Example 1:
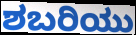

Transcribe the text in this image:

ಶಬರಿಯು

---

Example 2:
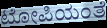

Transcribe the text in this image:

ಟೋಪಿಯಂತೆ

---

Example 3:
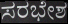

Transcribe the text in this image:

ಸರಭೇಶ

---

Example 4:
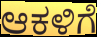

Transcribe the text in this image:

ಆಕಳಿಗೆ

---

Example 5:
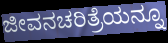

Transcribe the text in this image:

ಜೀವನಚರಿತ್ರೆಯನ್ನೂ